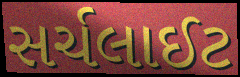
સર્ચલાઈટ